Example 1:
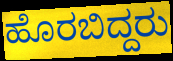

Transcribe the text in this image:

ಹೊರಬಿದ್ದರು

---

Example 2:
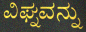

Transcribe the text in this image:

ವಿಘ್ನವನ್ನು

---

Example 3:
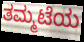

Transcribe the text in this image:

ತಮ್ಮಟೆಯ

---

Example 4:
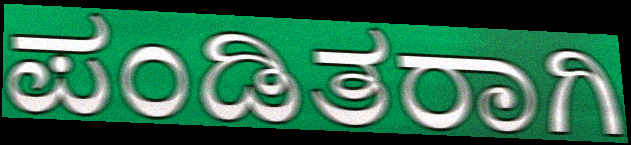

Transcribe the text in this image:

ಪಂಡಿತರಾಗಿ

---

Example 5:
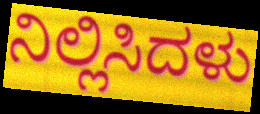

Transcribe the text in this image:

ನಿಲ್ಲಿಸಿದಳು